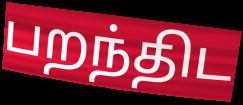
பறந்திட